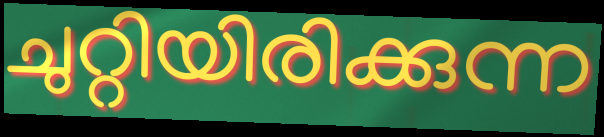
ചുറ്റിയിരിക്കുന്ന